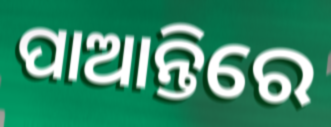
ପାଆନ୍ତିରେ